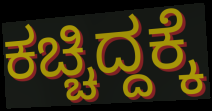
ಕಚ್ಚಿದ್ದಕ್ಕೆ